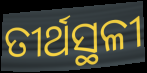
ତୀର୍ଥସ୍ଥଳୀ